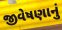
જીવેષણાનું